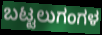
ಬಟ್ಟಲುಗಂಗಳ